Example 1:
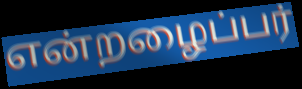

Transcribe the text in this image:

என்றழைப்பர்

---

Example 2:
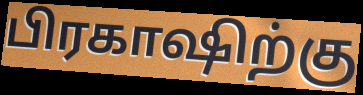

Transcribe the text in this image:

பிரகாஷிற்கு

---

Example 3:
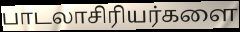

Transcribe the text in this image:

பாடலாசிரியர்களை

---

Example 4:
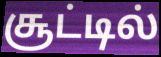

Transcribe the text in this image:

சூட்டில்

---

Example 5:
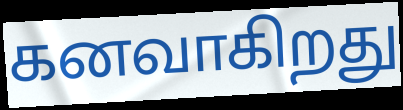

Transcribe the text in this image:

கனவாகிறது